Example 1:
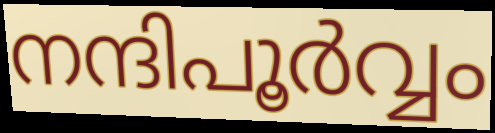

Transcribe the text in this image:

നന്ദിപൂർവ്വം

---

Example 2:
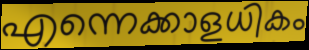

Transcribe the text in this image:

എന്നെക്കാളധികം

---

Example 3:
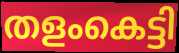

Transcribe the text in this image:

തളംകെട്ടി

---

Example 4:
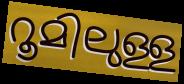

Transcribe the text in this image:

റൂമിലുള്ള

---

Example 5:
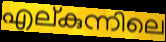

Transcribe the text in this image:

എല്കുന്നിലെ